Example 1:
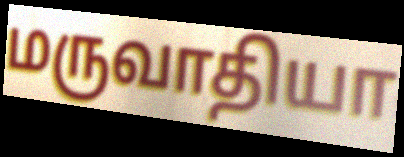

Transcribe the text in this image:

மருவாதியா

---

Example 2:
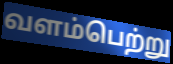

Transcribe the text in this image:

வளம்பெற்று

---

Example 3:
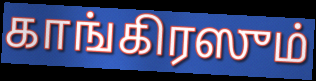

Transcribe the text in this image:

காங்கிரஸும்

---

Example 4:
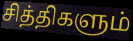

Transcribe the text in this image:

சித்திகளும்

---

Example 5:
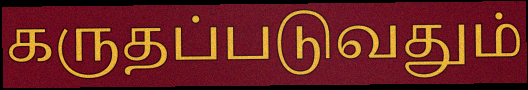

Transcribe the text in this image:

கருதப்படுவதும்